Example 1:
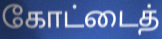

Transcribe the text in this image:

கோட்டைத்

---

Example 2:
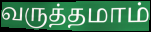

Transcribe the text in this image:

வருத்தமாம்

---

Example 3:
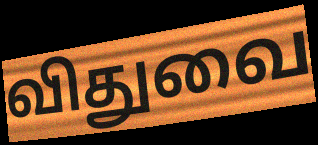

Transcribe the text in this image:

விதுவை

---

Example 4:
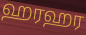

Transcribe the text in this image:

ஹரஹர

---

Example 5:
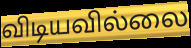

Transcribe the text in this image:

விடியவில்லை